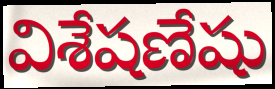
విశేషణేషు